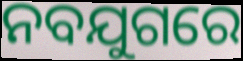
ନବଯୁଗରେ